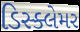
ડિસ્ક્લેમર